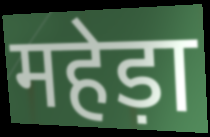
महेड़ा